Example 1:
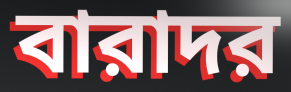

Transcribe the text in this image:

বারাদর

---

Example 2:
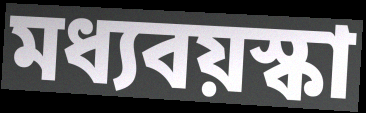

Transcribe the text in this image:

মধ্যবয়স্কা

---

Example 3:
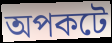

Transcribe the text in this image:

অপকটে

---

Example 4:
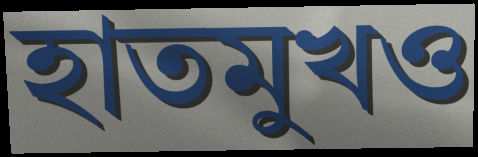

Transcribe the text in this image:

হাতমুখও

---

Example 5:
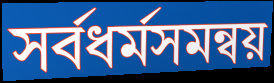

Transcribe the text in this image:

সর্বধর্মসমন্বয়